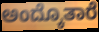
ಅಂದ್ಕೊತಾರೆ